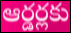
ఆర్డర్లకు